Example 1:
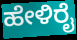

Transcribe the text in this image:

ಹೇಳಿರೈ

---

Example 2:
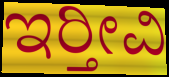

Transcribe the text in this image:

ಇರ‍್ತೀವಿ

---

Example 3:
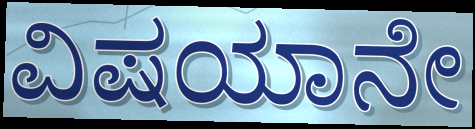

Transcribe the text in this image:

ವಿಷಯಾನೇ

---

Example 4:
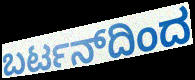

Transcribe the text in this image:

ಬರ್ಟನ್‌ದಿಂದ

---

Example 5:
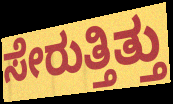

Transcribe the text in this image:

ಸೇರುತ್ತಿತ್ತು